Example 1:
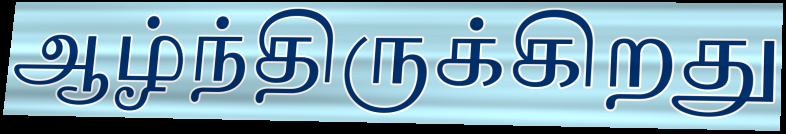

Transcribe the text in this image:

ஆழ்ந்திருக்கிறது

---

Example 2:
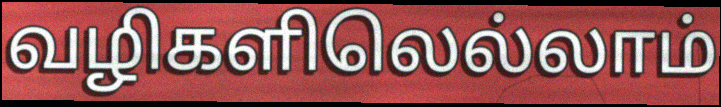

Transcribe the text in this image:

வழிகளிலெல்லாம்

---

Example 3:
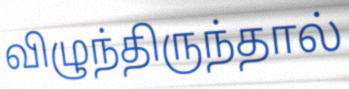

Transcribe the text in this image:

விழுந்திருந்தால்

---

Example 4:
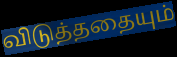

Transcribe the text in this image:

விடுத்ததையும்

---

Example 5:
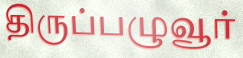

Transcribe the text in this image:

திருப்பழுவூர்